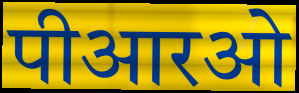
पीआरओ